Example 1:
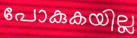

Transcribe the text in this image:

പോകുകയില്ല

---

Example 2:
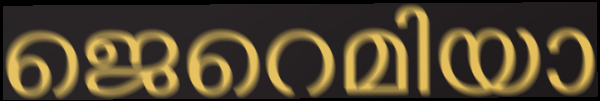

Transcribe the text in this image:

ജെറെമിയാ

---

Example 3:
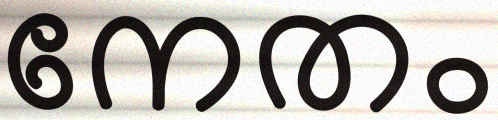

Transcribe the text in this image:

നേതം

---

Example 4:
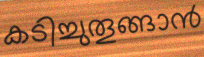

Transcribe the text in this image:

കടിച്ചുതൂങ്ങാൻ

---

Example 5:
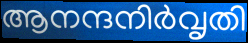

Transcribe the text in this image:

ആനന്ദനിർവൃതി